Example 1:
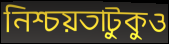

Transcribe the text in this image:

নিশ্চয়তাটুকুও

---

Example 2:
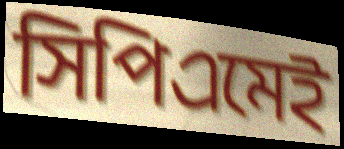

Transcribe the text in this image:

সিপিএমেই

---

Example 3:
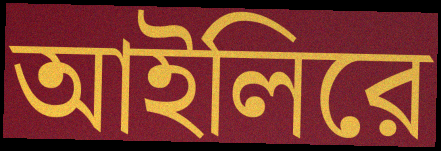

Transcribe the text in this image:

আইলিরে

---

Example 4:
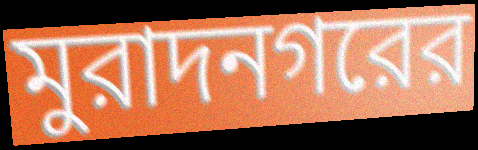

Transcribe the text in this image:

মুরাদনগরের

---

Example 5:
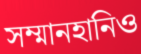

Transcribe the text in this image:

সম্মানহানিও